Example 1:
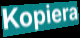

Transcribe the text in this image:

Kopiera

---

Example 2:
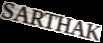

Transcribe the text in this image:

SARTHAK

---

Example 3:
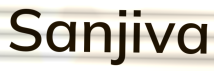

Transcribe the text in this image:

Sanjiva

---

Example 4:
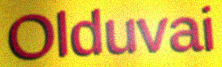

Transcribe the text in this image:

Olduvai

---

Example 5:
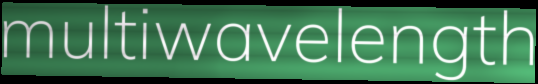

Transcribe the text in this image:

multiwavelength